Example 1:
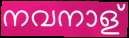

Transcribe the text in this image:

നവനാള്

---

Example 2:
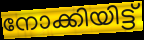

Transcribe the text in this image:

നോക്കിയിട്ട്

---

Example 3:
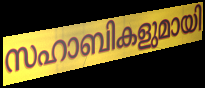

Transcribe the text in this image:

സഹാബികളുമായി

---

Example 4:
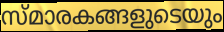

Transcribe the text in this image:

സ്മാരകങ്ങളുടെയും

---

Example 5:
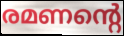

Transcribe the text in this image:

രമണന്റെ